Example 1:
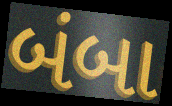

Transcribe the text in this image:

બંબા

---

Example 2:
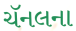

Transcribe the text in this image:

ચૅનલના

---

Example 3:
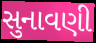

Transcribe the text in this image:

સુનાવણી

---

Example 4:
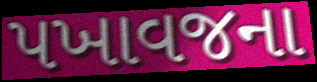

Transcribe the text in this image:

પખાવજના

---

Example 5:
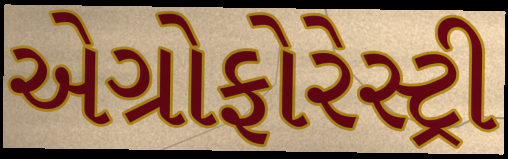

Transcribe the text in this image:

એગ્રોફોરેસ્ટ્રી